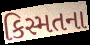
કિસ્મતના